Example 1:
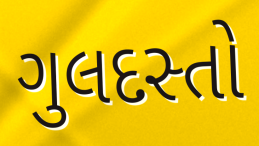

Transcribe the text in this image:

ગુલદસ્તો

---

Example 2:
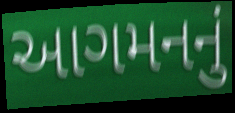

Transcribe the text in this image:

આગમનનું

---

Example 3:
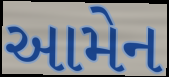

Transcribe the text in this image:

આમેન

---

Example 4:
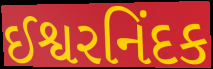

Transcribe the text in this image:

ઈશ્વરનિંદક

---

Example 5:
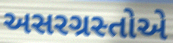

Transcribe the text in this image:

અસરગ્રસ્તોએ